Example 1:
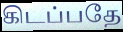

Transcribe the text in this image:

கிடப்பதே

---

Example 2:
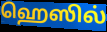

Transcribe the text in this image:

ஹெஸில்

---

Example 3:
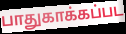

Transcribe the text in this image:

பாதுகாக்கப்பட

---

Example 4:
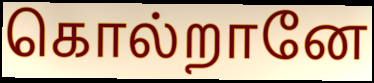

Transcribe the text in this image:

கொல்றானே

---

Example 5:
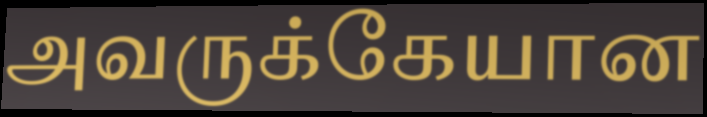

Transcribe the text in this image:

அவருக்கேயான